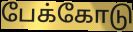
பேக்கோடு